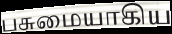
பசுமையாகிய